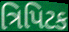
ત્રિપિટક